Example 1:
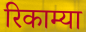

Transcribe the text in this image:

रिकाम्या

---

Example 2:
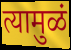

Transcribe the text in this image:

त्यामुळं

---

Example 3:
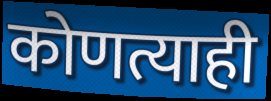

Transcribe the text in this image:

कोणत्याही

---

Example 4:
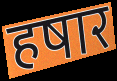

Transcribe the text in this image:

हषार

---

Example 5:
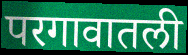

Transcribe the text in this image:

परगावातली